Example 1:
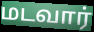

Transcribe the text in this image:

மடவார்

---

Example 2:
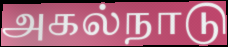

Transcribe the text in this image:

அகல்நாடு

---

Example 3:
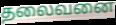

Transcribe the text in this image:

தலைவனை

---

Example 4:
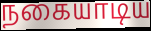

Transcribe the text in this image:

நகையாடிய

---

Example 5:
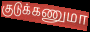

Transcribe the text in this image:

குடுக்கணுமா